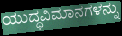
ಯುದ್ಧವಿಮಾನಗಳನ್ನು